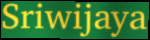
Sriwijaya